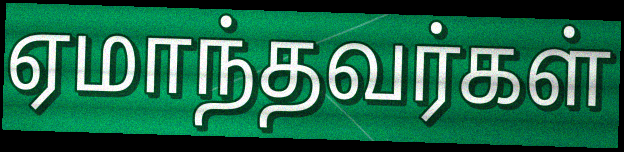
ஏமாந்தவர்கள்